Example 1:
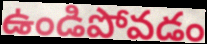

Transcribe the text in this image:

ఉండిపోవడం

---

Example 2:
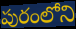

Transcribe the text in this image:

పురంలోని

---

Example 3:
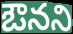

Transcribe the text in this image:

ఔనని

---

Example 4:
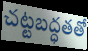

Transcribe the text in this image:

చట్టబద్ధతతో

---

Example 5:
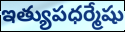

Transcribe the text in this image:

ఇత్యుపధర్మేషు